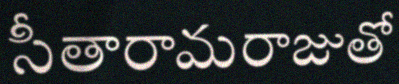
సీతారామరాజుతో